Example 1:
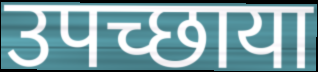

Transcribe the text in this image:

उपच्छाया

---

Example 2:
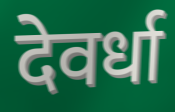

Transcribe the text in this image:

देवर्धा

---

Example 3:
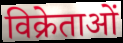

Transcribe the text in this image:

विक्रेताओं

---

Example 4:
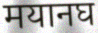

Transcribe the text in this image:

मयानघ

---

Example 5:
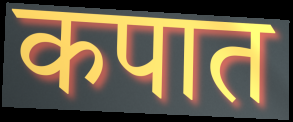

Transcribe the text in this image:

कपात